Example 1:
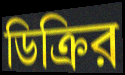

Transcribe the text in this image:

ডিক্রির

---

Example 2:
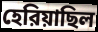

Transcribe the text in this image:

হেরিয়াছিল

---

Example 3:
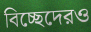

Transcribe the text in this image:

বিচ্ছেদেরও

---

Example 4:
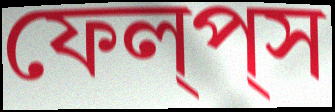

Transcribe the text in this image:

ফেল্‌প্‌স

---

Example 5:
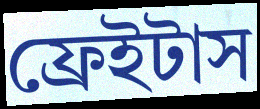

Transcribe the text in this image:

ফ্রেইটাস